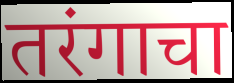
तरंगाचा